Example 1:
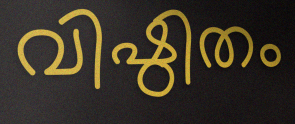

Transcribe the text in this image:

വിഷ്ഠിതം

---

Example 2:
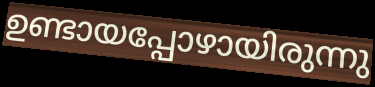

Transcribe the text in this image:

ഉണ്ടായപ്പോഴായിരുന്നു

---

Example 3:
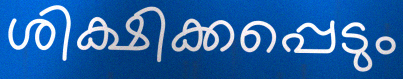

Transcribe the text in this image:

ശിക്ഷിക്കപ്പെടും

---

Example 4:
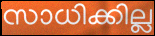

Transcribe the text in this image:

സാധിക്കില്ല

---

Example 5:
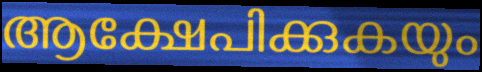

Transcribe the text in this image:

ആക്ഷേപിക്കുകയും